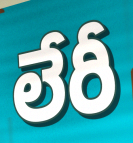
లేరీ